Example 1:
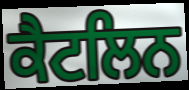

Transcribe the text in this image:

ਕੈਟਲਿਨ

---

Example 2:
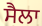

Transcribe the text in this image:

ਸੈਲਾ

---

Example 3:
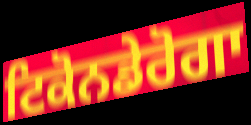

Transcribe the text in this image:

ਟਿਕੋਨਡੇਰੋਗਾ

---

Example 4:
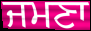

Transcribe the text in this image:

ਜਮਣਾ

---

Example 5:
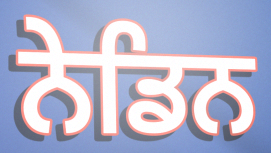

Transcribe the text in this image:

ਨੇਡਿਨ